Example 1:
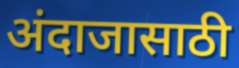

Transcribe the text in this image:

अंदाजासाठी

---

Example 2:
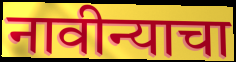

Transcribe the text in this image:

नावीन्याचा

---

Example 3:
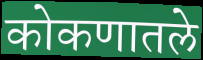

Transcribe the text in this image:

कोकणातले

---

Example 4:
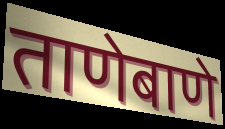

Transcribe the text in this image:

ताणेबाणे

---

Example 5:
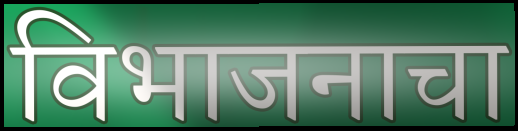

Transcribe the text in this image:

विभाजनाचा